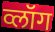
व्लॉग